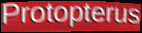
Protopterus